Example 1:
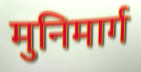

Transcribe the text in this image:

मुनिमार्ग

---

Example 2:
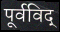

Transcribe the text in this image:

पूर्वविद्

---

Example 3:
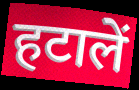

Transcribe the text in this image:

हटालें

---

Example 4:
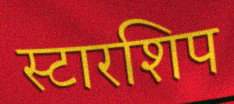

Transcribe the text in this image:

स्टारशिप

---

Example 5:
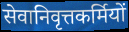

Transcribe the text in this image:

सेवानिवृत्तकर्मियों